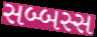
સબ્બસ્સ